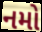
નમો